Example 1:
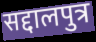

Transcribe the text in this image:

सद्दालपुत्र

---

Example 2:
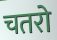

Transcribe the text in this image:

चतरो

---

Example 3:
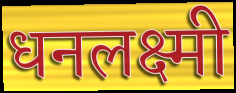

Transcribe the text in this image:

धनलक्ष्मी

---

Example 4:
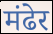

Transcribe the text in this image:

मंढेर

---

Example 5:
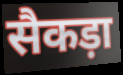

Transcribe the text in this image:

सैकड़ा